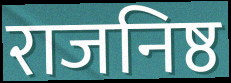
राजनिष्ठ